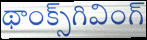
థాంక్స్‌గివింగ్